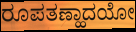
ರೂಪತಣ್ಹಾದಯೋ